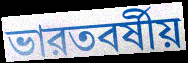
ভারতবর্ষীয়